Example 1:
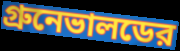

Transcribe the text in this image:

গ্রুনেভালডের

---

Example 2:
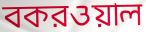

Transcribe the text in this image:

বকরওয়াল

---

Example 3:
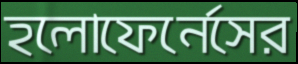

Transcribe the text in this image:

হলোফের্নেসের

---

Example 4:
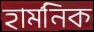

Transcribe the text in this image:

হার্মনিক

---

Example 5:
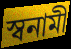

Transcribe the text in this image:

স্বনামী